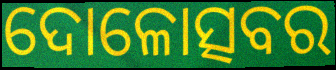
ଦୋଳୋତ୍ସବର